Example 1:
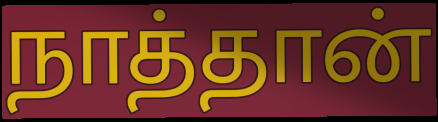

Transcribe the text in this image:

நாத்தான்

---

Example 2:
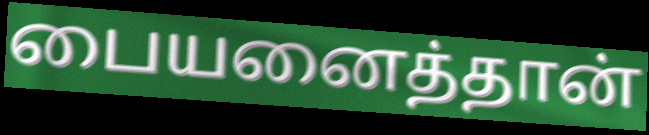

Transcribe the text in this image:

பையனைத்தான்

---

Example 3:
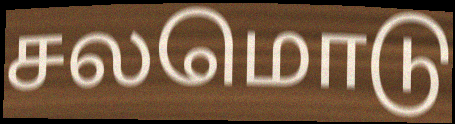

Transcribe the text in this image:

சலமொடு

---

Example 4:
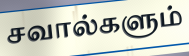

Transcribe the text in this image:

சவால்களும்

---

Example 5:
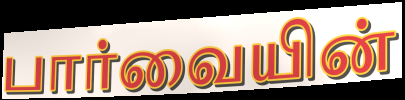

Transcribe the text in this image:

பார்வையின்